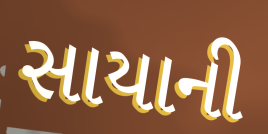
સાયાની